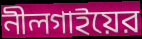
নীলগাইয়ের